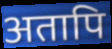
अतापि